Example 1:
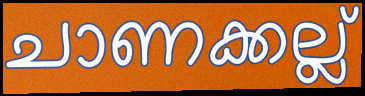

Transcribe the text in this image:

ചാണക്കല്ല്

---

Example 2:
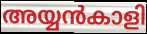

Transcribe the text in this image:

അയ്യൻകാളി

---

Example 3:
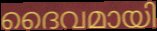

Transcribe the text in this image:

ദൈവമായി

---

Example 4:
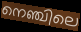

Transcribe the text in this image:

നെഞ്ചിലെ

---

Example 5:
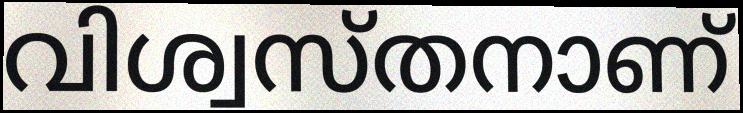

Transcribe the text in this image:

വിശ്വസ്തനാണ്